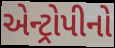
એન્ટ્રોપીનો